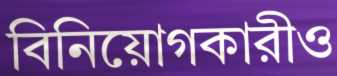
বিনিয়োগকারীও